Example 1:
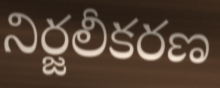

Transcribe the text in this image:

నిర్జలీకరణ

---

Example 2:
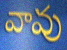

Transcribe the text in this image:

వావు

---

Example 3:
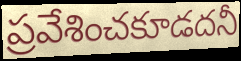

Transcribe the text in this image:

ప్రవేశించకూడదనీ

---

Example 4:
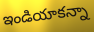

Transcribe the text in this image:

ఇండియాకన్నా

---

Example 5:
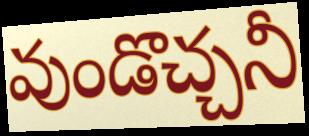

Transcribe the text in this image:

వుండొచ్చనీ